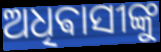
ଅଧିଵାସୀଙ୍କୁ